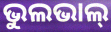
ଭୁଲଭାଲ୍